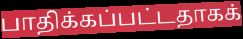
பாதிக்கப்பட்டதாகக்